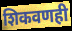
शिकवणही